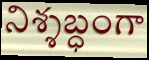
నిశ్శబ్ధంగా